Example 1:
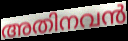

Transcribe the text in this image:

അതിനവൻ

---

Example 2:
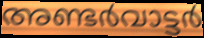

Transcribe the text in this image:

അണ്ടർവാട്ടർ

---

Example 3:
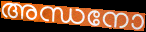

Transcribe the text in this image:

അന്ധനോ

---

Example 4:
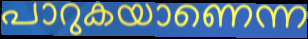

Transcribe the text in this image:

പാറുകയാണെന്ന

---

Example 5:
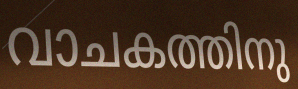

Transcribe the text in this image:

വാചകത്തിനു